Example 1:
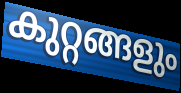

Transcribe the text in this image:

കുറ്റങ്ങളും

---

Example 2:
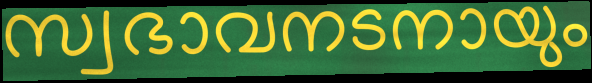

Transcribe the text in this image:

സ്വഭാവനടനായും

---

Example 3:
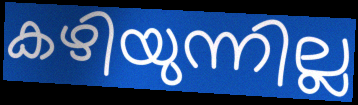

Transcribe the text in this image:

കഴിയുന്നില്ല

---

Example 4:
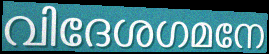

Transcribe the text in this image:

വിദേശഗമനേ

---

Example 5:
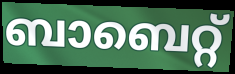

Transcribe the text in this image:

ബാബെറ്റ്